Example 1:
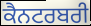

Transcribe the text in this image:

ਕੈਨਟਰਬਰੀ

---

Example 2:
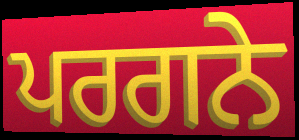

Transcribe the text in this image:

ਪਰਗਨੇ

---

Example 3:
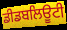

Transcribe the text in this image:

ਡੀਡਬਲਿਊਟੀ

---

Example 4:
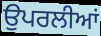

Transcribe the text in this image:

ਉਪਰਲੀਆਂ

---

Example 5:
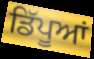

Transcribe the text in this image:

ਡਿੱਪੂਆਂ